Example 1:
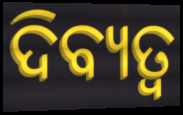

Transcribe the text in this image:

ଦିବ୍ୟତ୍ବ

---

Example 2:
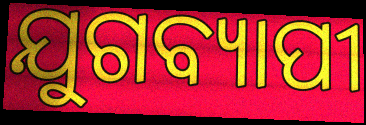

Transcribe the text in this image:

ଯୁଗବ୍ୟାପୀ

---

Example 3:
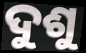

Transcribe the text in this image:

ଦୁଶୁ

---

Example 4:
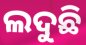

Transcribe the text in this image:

ଲଦୁଛି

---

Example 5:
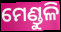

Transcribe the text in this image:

ମେଣ୍ଡୁଳି